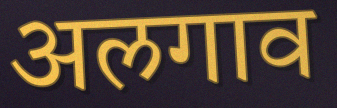
अलगाव